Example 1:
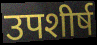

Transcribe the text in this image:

उपशीर्ष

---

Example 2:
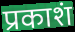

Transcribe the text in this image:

प्रकाशं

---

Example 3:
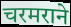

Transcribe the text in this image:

चरमराने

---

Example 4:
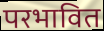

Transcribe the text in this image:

परभावित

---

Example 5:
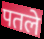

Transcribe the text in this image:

पतले